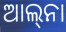
ଆଲ୍‍ନା